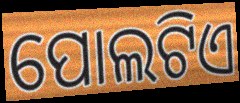
ପୋଲଟିଏ